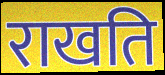
राखति